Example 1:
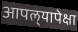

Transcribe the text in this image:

आपल्यापेक्षा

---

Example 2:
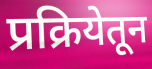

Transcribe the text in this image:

प्रक्रियेतून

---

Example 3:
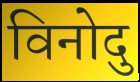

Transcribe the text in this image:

विनोदु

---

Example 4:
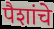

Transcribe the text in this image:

पैशांचे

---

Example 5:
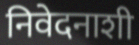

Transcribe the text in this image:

निवेदनाशी